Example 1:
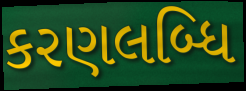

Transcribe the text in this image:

કરણલબ્ધિ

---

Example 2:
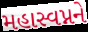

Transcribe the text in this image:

મહાસ્વપ્નને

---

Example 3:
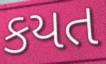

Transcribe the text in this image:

કયત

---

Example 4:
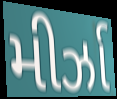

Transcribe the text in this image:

મીર્ઝા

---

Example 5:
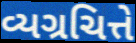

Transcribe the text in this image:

વ્યગ્રચિત્તે